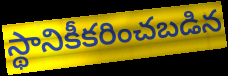
స్థానికీకరించబడిన